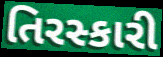
તિરસ્કારી